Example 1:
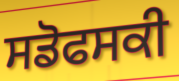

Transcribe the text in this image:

ਸਡੋਫਸਕੀ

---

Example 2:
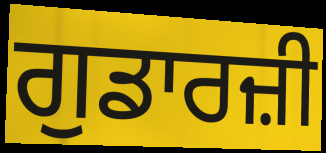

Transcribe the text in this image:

ਗੁਡਾਰਜ਼ੀ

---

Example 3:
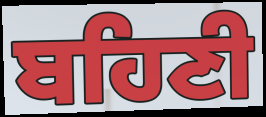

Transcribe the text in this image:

ਬਹਿਣੀ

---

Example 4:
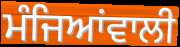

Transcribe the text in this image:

ਮੰਜਿਆਂਵਾਲੀ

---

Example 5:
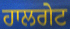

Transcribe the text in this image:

ਹਾਲਗੇਟ